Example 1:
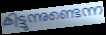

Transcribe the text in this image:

കിട്ടുന്നുണ്ടെന്ന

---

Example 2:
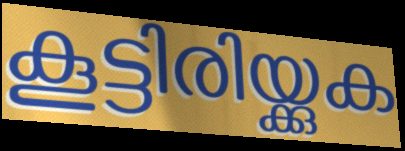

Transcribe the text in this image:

കൂട്ടിരിയ്ക്കുക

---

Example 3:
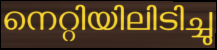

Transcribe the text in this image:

നെറ്റിയിലിടിച്ചു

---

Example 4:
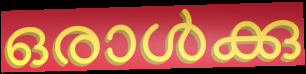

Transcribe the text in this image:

ഒരാൾക്കു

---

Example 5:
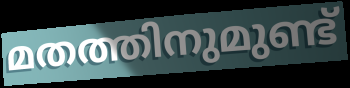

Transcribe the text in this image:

മതത്തിനുമുണ്ട്